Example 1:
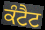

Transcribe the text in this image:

ਕੰਟੈਟ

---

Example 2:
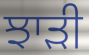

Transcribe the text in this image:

ਝਾੜੀ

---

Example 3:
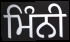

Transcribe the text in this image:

ਮਿੰਨੀ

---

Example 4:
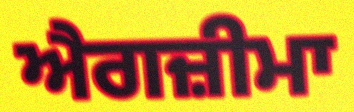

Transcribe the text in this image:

ਐਗਜ਼ੀਮਾ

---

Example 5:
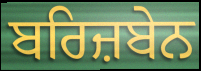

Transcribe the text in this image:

ਬਰਿਜ਼ਬੇਨ